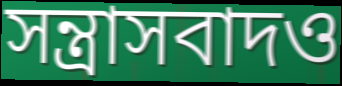
সন্ত্রাসবাদও